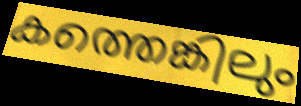
കത്തെങ്കിലും